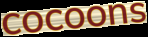
cocoons